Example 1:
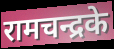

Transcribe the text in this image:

रामचन्द्रके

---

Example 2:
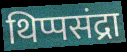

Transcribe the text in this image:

थिप्पसंद्रा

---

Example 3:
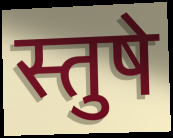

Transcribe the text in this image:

स्तुषे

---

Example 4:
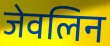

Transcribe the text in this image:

जेवलिन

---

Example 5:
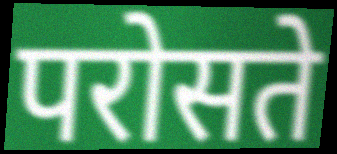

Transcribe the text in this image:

परोसते